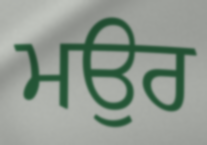
ਮਉਰ